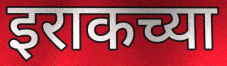
इराकच्या